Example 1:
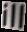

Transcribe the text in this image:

ill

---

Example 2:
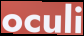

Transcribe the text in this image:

oculi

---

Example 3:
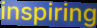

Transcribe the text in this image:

inspiring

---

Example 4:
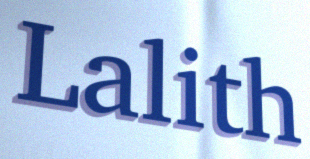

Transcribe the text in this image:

Lalith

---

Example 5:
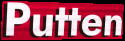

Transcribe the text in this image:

Putten